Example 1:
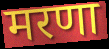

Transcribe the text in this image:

मरणा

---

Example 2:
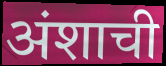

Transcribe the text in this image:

अंशाची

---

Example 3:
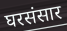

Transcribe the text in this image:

घरसंसार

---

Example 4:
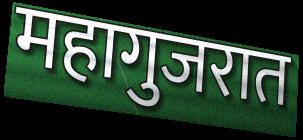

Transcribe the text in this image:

महागुजरात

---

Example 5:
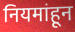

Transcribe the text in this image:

नियमांहून